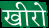
खीरो